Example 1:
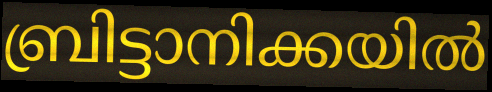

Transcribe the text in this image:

ബ്രിട്ടാനിക്കയിൽ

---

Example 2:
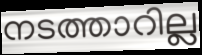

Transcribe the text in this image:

നടത്താറില്ല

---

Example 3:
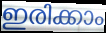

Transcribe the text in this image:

ഇരിക്കാം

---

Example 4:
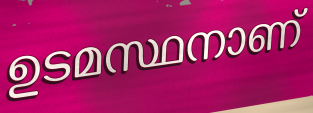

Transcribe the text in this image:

ഉടമസ്ഥനാണ്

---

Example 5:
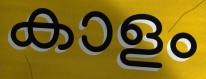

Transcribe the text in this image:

കാളം